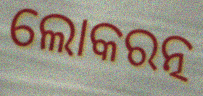
ଲୋକରତ୍ନ